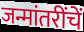
जन्मांतरींचें